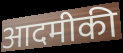
आदमीकी